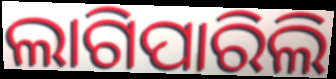
ଲାଗିପାରିଲି